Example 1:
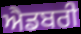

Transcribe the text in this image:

ਐਡਬਰੀ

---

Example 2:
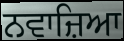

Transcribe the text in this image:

ਨਵਾਜ਼ਿਆ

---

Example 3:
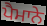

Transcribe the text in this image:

ਪੈਮਾਨੇ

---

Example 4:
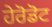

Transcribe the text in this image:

ਹੇਰੋਡੋਟ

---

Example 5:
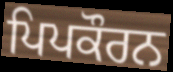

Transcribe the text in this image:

ਪਿਪਕੌਰਨ